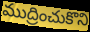
ముద్రించుకొని